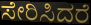
ಸೇರಿಸಿದರೆ